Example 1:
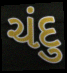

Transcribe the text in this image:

ચંદુ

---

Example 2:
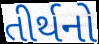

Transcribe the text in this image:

તીર્થનો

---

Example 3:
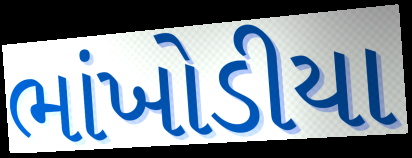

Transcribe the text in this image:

ભાંખોડીયા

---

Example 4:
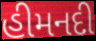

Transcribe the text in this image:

હીમનદી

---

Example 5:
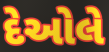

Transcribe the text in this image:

દેઓલે